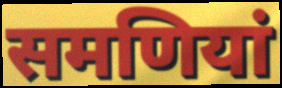
समणियां